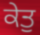
ਕੇਤੁ